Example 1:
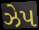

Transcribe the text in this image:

ઝેપ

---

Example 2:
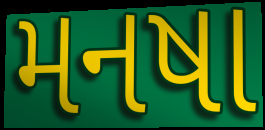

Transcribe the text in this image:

મનષા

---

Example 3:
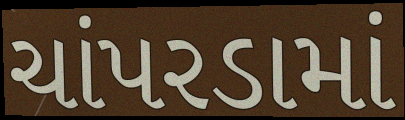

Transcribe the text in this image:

ચાંપરડામાં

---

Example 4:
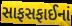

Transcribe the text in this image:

સાફસફાઈનાં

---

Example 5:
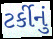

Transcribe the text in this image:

ટર્કીનું